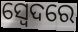
ସ୍ଵେଦରେ